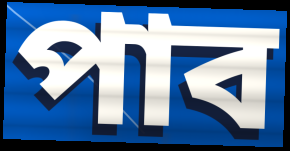
পাব